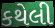
કથેલી